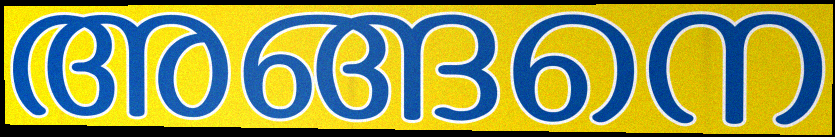
അങ്ങനെ